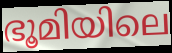
ഭൂമിയിലെ